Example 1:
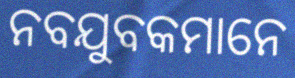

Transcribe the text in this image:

ନବଯୁବକମାନେ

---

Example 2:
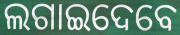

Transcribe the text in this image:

ଲଗାଇଦେବେ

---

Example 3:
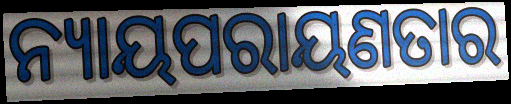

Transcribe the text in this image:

ନ୍ୟାୟପରାୟଣତାର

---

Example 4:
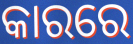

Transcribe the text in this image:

କାରରେ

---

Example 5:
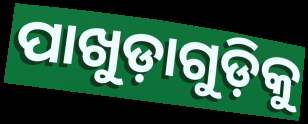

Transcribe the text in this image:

ପାଖୁଡ଼ାଗୁଡ଼ିକୁ